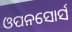
ଓପନସୋର୍ସ